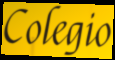
Colegio